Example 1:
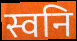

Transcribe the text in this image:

स्वनि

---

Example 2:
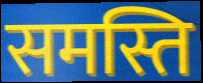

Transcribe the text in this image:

समस्ति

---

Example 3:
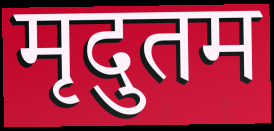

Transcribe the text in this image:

मृदुतम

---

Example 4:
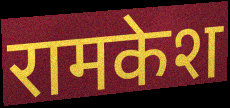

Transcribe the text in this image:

रामकेश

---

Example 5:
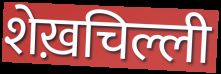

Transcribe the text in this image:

शेख़चिल्ली